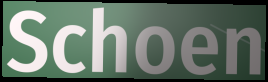
Schoen